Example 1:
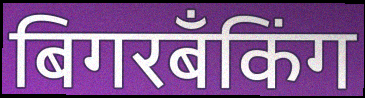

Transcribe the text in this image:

बिगरबँकिंग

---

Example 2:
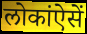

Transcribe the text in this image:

लोकांऐसें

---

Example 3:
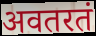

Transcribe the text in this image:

अवतरतं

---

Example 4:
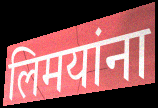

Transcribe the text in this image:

लिमयांना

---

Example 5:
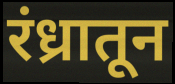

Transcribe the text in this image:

रंध्रातून